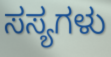
ಸಸ್ಯಗಳು